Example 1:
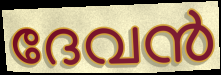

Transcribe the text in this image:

ദേവൻ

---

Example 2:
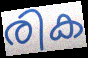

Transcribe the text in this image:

രിക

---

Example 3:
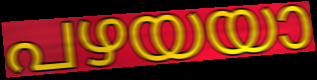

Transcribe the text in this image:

പഴയയാ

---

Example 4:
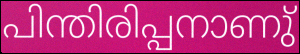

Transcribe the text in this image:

പിന്തിരിപ്പനാണു്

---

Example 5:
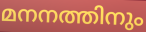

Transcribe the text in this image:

മനനത്തിനും